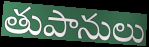
తుపానులు